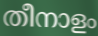
തീനാളം